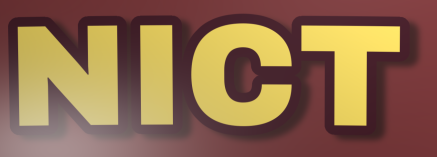
NICT